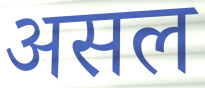
असल